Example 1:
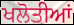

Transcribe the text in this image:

ਖਲੋਤੀਆਂ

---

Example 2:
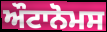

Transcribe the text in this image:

ਔਟਾਨੋਮਸ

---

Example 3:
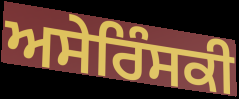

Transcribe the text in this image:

ਅਸੇਰਿੰਸਕੀ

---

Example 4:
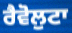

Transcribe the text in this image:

ਰੈਵੋਲੁਟਾ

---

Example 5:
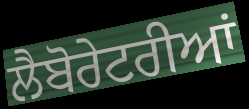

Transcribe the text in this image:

ਲੈਬੋਰੇਟਰੀਆਂ